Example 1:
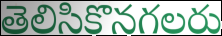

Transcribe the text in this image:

తెలిసికొనగలరు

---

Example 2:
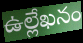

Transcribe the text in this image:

ఉల్లేఖనం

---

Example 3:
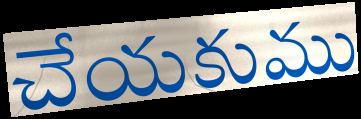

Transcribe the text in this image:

చేయకుము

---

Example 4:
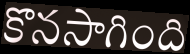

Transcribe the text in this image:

కొనసాగింది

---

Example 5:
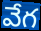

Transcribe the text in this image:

వేగ